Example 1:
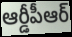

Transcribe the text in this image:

ఆర్డీపీఆర్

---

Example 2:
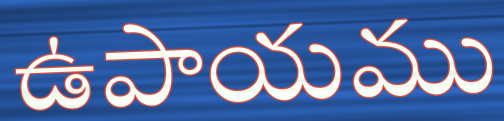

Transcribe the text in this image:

ఉపాయము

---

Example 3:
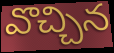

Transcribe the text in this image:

వొచ్చిన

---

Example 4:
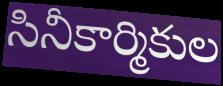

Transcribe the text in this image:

సినీకార్మికుల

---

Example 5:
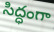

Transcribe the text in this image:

సిద్ధంగా